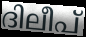
ദിലീപ്